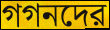
গগনদের